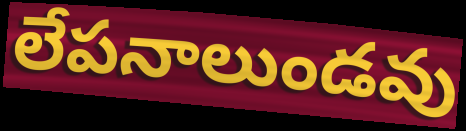
లేపనాలుండవు